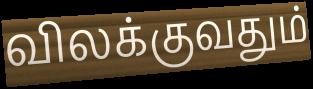
விலக்குவதும்